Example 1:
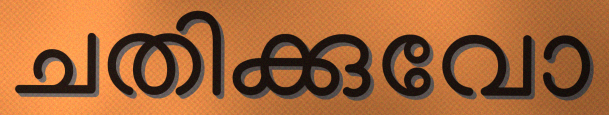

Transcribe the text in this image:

ചതിക്കുവോ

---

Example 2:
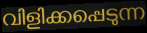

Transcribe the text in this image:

വിളിക്കപ്പെടുന്ന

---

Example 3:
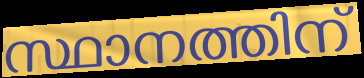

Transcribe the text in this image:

സ്ഥാനത്തിന്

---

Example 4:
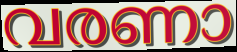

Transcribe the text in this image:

വരണാ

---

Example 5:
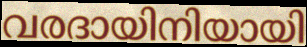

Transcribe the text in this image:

വരദായിനിയായി